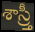
శాస్ర్తీ